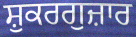
ਸ਼ੁਕਰਗੁਜ਼ਾਰ